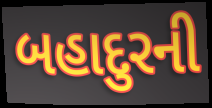
બહાદુરની